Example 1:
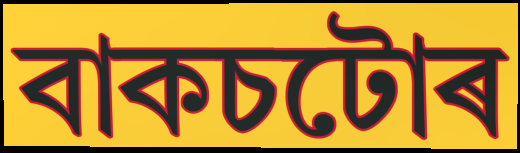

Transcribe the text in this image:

বাকচটোৰ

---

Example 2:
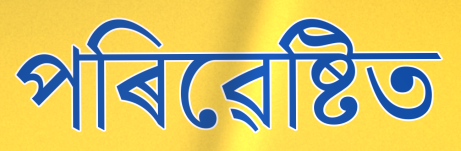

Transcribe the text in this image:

পৰিৱেষ্টিত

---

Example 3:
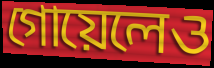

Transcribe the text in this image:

গোয়েলেও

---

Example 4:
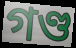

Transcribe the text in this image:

গণ্ড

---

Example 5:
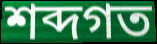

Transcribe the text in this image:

শব্দগত